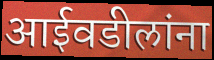
आईवडीलांना